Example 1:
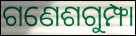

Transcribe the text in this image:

ଗଣେଶଗୁମ୍ଫା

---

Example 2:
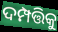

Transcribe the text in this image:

ଦମ୍ପତ୍ତିକୁ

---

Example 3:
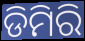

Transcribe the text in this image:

ଡିମିରି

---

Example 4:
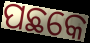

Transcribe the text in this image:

ପଛକେ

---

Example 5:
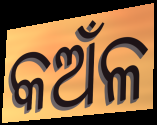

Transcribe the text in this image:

କଅଁଳ